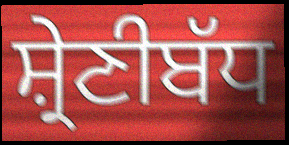
ਸ਼੍ਰੇਣੀਬੱਧ